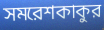
সমরেশকাকুর